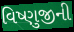
વિષ્ણુજીની